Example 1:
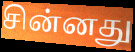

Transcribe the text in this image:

சின்னது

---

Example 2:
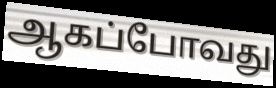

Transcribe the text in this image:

ஆகப்போவது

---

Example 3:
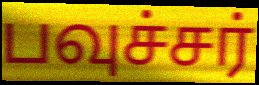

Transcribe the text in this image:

பவுச்சர்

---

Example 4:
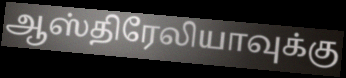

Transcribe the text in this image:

ஆஸ்திரேலியாவுக்கு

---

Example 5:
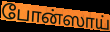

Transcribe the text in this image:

போன்ஸாய்